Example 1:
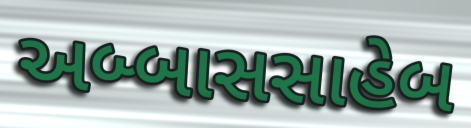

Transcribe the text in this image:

અબ્બાસસાહેબ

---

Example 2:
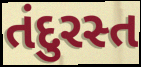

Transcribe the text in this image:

તંદુરસ્ત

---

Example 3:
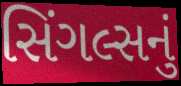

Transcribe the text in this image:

સિંગલ્સનું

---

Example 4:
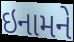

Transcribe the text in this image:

ઇનામને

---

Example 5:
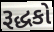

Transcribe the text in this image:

રૂદ્ધકો